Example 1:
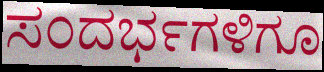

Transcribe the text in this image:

ಸಂದರ್ಭಗಳಿಗೂ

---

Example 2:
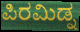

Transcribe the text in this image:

ಪಿರಮಿಡ್ನ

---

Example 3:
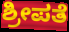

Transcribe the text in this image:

ಶ್ರೀಪತೆ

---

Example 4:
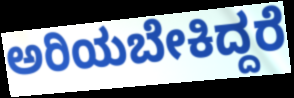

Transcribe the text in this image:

ಅರಿಯಬೇಕಿದ್ದರೆ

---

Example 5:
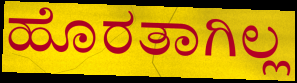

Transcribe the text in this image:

ಹೊರತಾಗಿಲ್ಲ